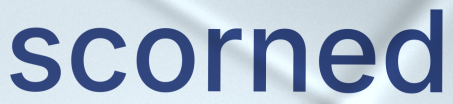
scorned